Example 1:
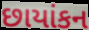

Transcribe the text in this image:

છાયાંકન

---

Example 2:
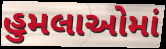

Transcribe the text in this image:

હુમલાઓમાં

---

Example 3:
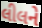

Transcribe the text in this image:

લીલને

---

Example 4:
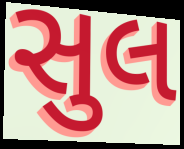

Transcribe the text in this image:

સુલ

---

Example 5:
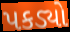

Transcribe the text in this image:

પકડ્યો